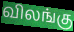
விலங்கு